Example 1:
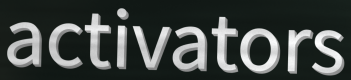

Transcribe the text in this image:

activators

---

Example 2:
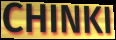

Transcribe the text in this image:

CHINKI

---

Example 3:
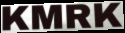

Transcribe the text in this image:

KMRK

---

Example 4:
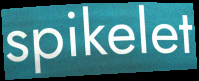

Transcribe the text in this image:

spikelet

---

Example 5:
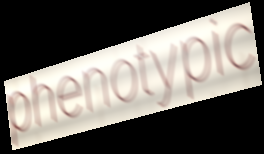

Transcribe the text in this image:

phenotypic